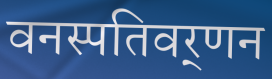
वनस्पतिवर्णन